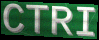
CTRI